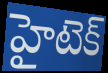
హైటెక్